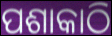
ପଶାକାଠି